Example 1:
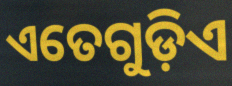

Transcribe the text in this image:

ଏତେଗୁଡ଼ିଏ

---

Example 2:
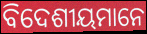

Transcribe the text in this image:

ବିଦେଶୀୟମାନେ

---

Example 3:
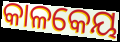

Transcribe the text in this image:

କାଳକେୟ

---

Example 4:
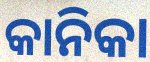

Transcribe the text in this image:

କାନିକା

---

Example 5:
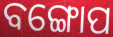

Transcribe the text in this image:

ବଙ୍ଗୋପ